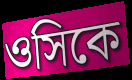
ওসিকে